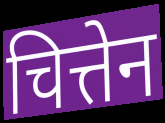
चित्तेन